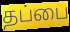
தப்பை